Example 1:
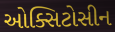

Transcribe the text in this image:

ઓક્સિટોસીન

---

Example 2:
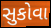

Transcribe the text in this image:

સુકોવા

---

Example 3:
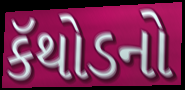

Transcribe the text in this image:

કૅથોડનો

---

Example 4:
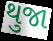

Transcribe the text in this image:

થુજા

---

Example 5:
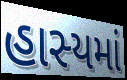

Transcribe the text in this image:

હાસ્યમાં